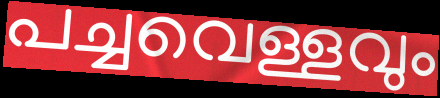
പച്ചവെള്ളവും